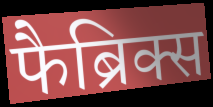
फैब्रिक्स